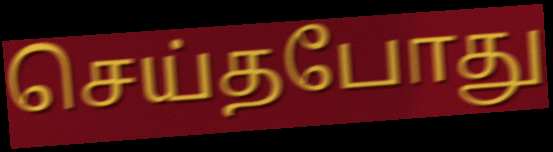
செய்தபோது